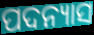
ପଦନ୍ୟାସ